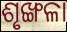
ଶୃଙ୍ଖଳା